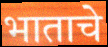
भाताचे